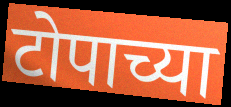
टोपाच्या